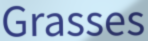
Grasses